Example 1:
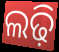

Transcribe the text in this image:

ଲଢ଼ି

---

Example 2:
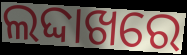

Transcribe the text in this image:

ଲଦ୍ଦାଖରେ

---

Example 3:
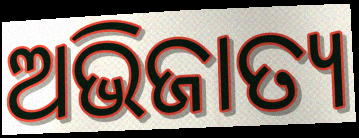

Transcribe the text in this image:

ଅଭିଜାତ୍ୟ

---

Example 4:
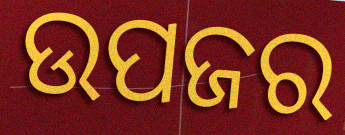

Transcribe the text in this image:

ଉପଜର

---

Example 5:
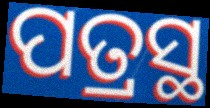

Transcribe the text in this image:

ପତ୍ରସ୍ଥ